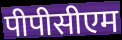
पीपीसीएम